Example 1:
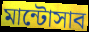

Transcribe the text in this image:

মান্টোসাব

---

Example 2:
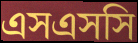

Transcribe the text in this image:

এসএসসি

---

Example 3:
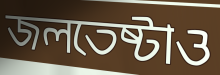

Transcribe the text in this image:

জলতেষ্টাও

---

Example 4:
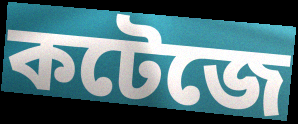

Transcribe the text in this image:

কটেজে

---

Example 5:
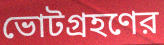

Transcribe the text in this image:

ভোটগ্রহণের